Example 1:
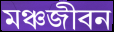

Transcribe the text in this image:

মঞ্চজীবন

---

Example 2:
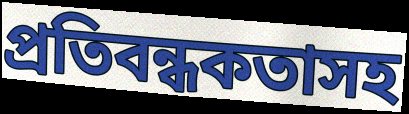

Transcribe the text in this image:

প্রতিবন্ধকতাসহ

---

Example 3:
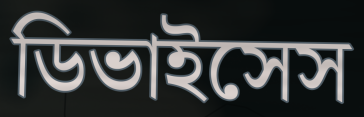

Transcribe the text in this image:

ডিভাইসেস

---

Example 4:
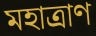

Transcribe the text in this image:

মহাত্রাণ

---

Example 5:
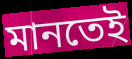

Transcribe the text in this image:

মানতেই